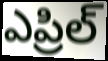
ఎప్రిల్